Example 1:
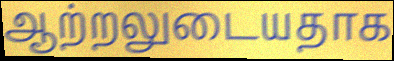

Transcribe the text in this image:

ஆற்றலுடையதாக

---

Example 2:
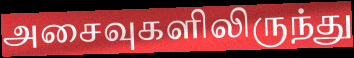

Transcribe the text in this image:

அசைவுகளிலிருந்து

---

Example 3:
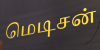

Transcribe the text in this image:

மெடிசன்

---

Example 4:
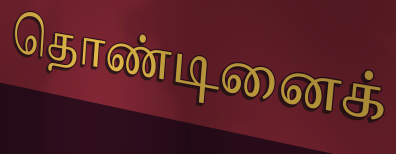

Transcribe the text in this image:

தொண்டினைக்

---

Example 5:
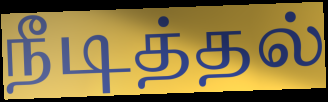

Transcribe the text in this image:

நீடித்தல்